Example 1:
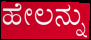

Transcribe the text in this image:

ಹೇಲನ್ನು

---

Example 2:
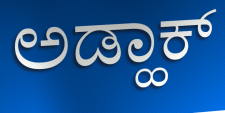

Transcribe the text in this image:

ಅಡ್ಹಾಕ್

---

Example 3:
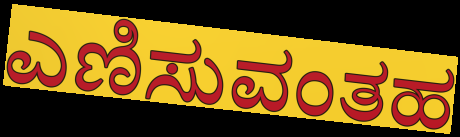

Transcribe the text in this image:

ಎಣಿಸುವಂತಹ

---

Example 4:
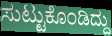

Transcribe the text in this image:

ಸುಟ್ಟುಕೊಂಡಿದ್ದು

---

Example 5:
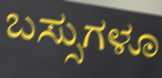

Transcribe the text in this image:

ಬಸ್ಸುಗಳೂ